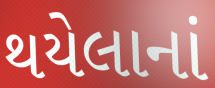
થયેલાનાં